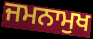
ਜਮਨਾਮੁਖ